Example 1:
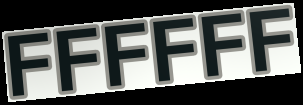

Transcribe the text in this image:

FFFFFF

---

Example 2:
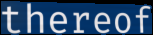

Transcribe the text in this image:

thereof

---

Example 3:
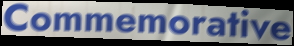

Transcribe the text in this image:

Commemorative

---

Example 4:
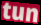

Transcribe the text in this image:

tun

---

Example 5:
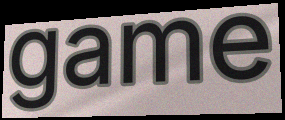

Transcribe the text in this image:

game